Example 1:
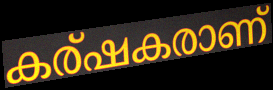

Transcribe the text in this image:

കര്ഷകരാണ്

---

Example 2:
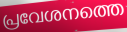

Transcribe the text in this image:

പ്രവേശനത്തെ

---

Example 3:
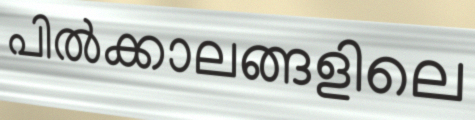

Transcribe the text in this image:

പിൽക്കാലങ്ങളിലെ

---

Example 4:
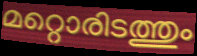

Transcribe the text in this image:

മറ്റൊരിടത്തും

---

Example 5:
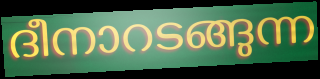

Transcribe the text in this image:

ദീനാറടങ്ങുന്ന